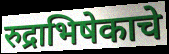
रुद्राभिषेकाचे